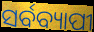
ସର୍ବବ୍ୟାପୀ